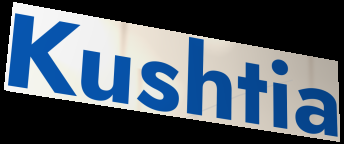
Kushtia